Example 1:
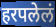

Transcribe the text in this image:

हरपलेलं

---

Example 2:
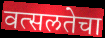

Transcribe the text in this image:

वत्सलतेचा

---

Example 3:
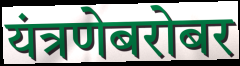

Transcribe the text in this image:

यंत्रणेबरोबर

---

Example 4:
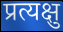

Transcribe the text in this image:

प्रत्यक्षु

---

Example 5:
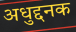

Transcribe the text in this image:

अधुद्दनक